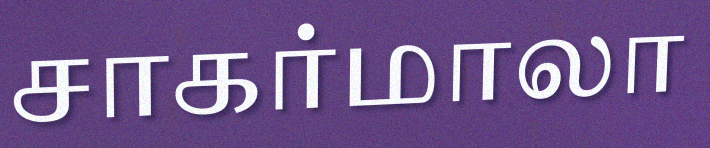
சாகர்மாலா